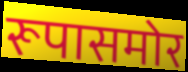
रूपासमोर